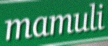
mamuli